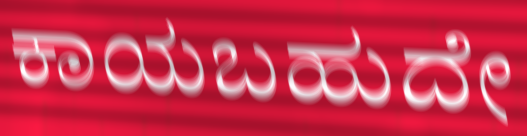
ಕಾಯಬಹುದೇ